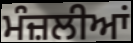
ਮੰਜ਼ਲੀਆਂ